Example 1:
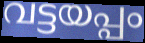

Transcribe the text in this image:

വട്ടയപ്പം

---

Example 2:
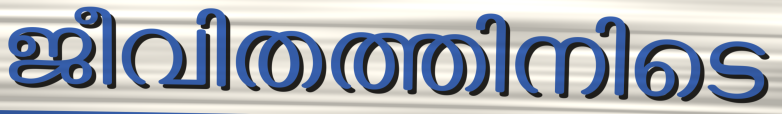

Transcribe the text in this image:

ജീവിതത്തിനിടെ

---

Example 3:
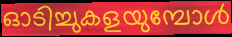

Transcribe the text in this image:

ഓടിച്ചുകളയുമ്പോൾ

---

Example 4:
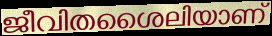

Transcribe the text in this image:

ജീവിതശൈലിയാണ്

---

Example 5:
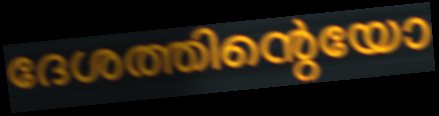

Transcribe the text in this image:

ദേശത്തിന്റെയോ